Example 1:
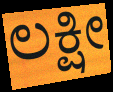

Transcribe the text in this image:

ಲಕ್ಷೀ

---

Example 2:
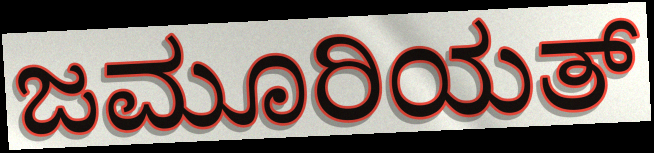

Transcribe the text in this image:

ಜಮೂರಿಯತ್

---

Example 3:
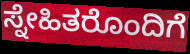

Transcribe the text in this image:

ಸ್ನೇಹಿತರೊಂದಿಗೆ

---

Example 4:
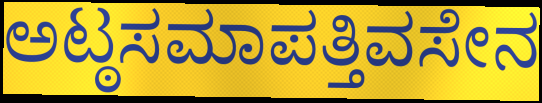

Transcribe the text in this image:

ಅಟ್ಠಸಮಾಪತ್ತಿವಸೇನ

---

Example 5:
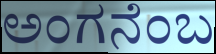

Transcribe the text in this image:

ಅಂಗನೆಂಬ